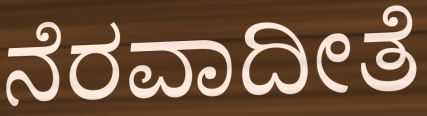
ನೆರವಾದೀತೆ